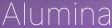
Alumina